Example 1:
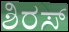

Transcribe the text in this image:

ಶಿರಸ್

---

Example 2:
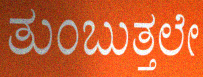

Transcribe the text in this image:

ತುಂಬುತ್ತಲೇ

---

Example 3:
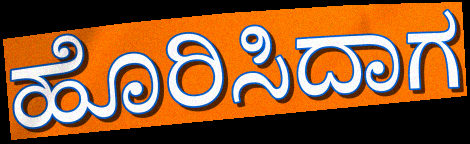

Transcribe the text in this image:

ಹೊರಿಸಿದಾಗ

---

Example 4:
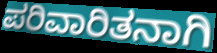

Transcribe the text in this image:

ಪರಿವಾರಿತನಾಗಿ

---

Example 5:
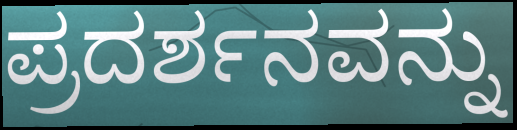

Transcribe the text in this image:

ಪ್ರದರ್ಶನವನ್ನು